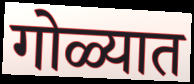
गोळ्यात